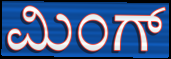
ಮಿಂಗ್